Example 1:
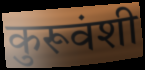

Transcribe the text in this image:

कुरूवंशी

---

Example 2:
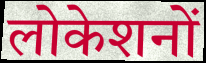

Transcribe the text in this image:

लोकेशनों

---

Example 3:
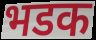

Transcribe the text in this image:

भडक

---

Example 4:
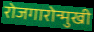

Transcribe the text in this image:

रोजगारोन्मुखी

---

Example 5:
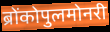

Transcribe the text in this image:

ब्रोंकोपुलमोनरी